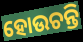
ହୋଉଚନ୍ତି